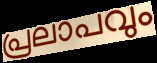
പ്രലാപവും